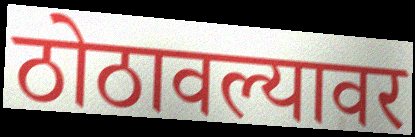
ठोठावल्यावर